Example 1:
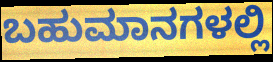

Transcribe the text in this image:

ಬಹುಮಾನಗಳಲ್ಲಿ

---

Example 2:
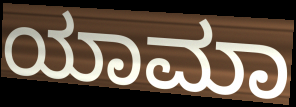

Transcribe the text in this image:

ಯಾಮಾ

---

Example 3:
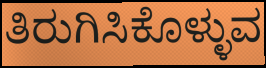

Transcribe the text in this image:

ತಿರುಗಿಸಿಕೊಳ್ಳುವ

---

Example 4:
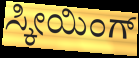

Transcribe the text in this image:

ಸ್ಕೀಯಿಂಗ್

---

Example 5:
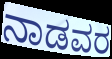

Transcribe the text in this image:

ನಾಡವರ